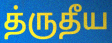
த்ருதீய